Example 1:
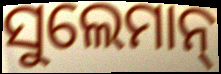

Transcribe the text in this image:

ସୁଲେମାନ୍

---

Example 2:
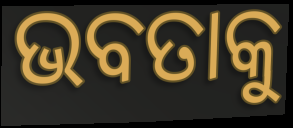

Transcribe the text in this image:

ଭବତାକୁ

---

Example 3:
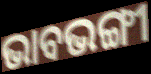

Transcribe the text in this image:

ଭାବଭଙ୍ଗୀ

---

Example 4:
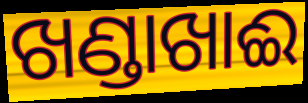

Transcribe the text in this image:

ଖଣ୍ଡାଖାଈ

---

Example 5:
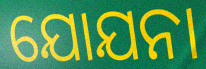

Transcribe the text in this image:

ଯୋଯନା